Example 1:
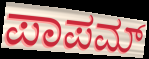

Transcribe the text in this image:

ಪಾಪಮ್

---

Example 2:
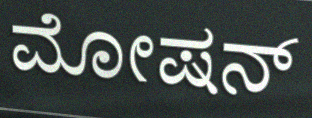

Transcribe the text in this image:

ಮೋಷನ್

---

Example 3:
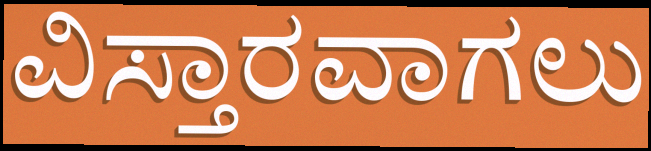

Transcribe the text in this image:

ವಿಸ್ತಾರವಾಗಲು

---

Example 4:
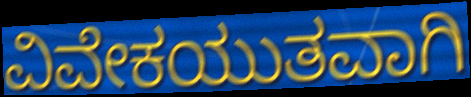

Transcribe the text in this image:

ವಿವೇಕಯುತವಾಗಿ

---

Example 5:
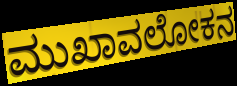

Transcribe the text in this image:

ಮುಖಾವಲೋಕನ